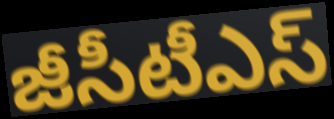
జీసీటీఎస్